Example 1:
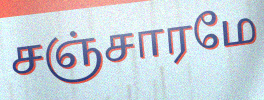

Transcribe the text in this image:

சஞ்சாரமே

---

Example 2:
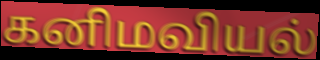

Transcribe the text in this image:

கனிமவியல்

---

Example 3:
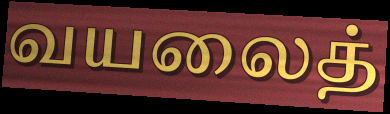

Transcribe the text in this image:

வயலைத்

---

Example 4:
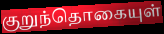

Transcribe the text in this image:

குறுந்தொகையுள்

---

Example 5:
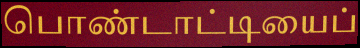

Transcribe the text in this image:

பொண்டாட்டியைப்